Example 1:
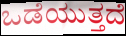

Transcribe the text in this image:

ಒಡೆಯುತ್ತದೆ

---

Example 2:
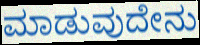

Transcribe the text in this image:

ಮಾಡುವುದೇನು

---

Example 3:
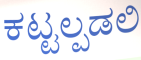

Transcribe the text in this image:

ಕಟ್ಟಲ್ಪಡಲಿ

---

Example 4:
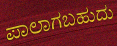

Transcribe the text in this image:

ಪಾಲಾಗಬಹುದು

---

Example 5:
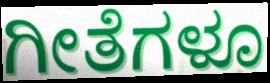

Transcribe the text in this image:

ಗೀತೆಗಳೂ